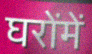
घरोंमें